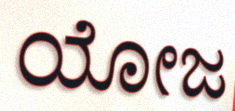
ಯೋಜ